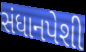
સંધાનપેશી